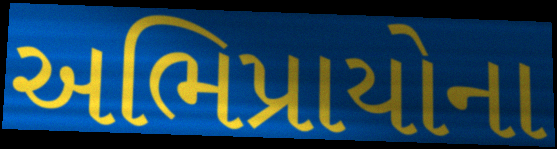
અભિપ્રાયોના